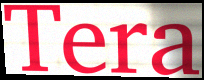
Tera